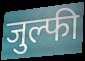
जुल्फी